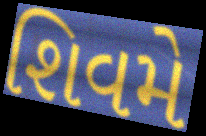
શિવમે